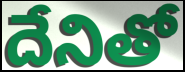
దేనితో